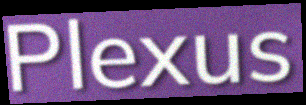
Plexus